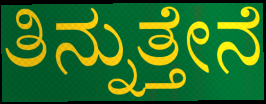
ತಿನ್ನುತ್ತೇನೆ